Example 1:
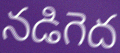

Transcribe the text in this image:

నడిగెద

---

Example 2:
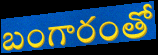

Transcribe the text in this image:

బంగారంతో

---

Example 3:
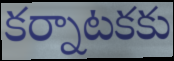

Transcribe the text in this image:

కర్నాటకకు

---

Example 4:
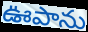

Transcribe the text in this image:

ఊపాను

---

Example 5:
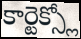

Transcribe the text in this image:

కార్టెక్స్లో